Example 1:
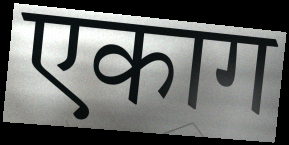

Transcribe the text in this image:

एकाग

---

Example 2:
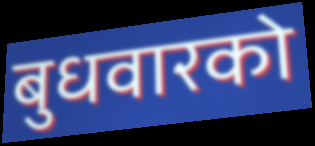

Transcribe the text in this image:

बुधवारको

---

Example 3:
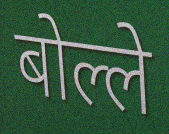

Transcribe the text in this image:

बोल्ले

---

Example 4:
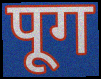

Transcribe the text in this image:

पूग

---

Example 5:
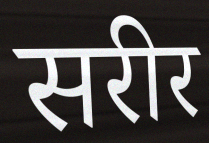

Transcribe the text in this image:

सरीर